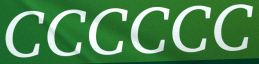
CCCCCC